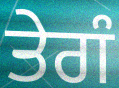
ਤੇਗੰ